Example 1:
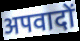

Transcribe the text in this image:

अपवादों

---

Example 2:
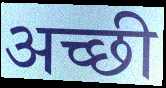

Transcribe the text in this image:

अच्छी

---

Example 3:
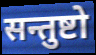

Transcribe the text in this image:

सन्तुष्टो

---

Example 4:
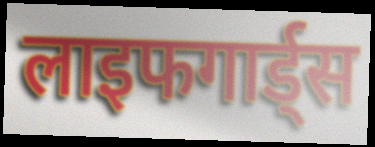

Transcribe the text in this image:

लाइफगार्ड्स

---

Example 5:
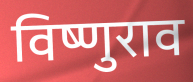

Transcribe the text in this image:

विष्णुराव